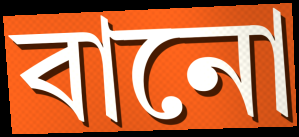
বানো